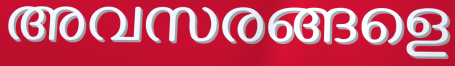
അവസരങ്ങളെ